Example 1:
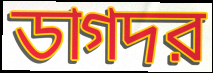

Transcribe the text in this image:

ডাগদর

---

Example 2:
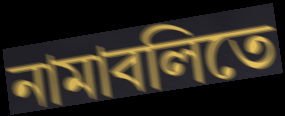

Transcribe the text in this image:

নামাবলিতে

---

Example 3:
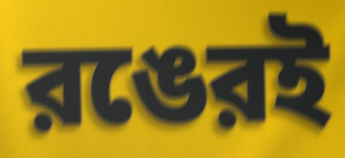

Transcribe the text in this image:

রঙেরই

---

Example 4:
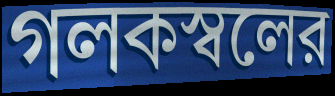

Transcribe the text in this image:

গলকস্বলের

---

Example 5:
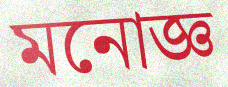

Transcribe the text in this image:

মনোজ্ঞ